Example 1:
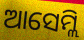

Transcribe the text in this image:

ଆସେମ୍ଲି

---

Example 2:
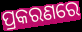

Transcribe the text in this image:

ପ୍ରକରଣରେ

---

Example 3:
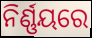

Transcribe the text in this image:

ନିର୍ଣ୍ଣୟରେ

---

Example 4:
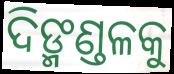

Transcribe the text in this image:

ଦିଙ୍ମଣ୍ଡଳକୁ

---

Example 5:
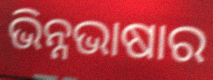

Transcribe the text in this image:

ଭିନ୍ନଭାଷାର